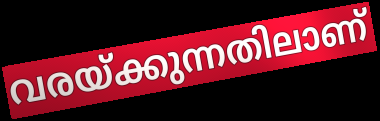
വരയ്ക്കുന്നതിലാണ്